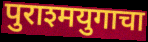
पुराश्मयुगाचा